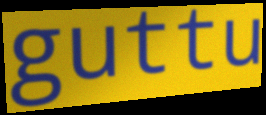
guttu